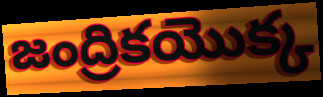
జంద్రికయొక్క